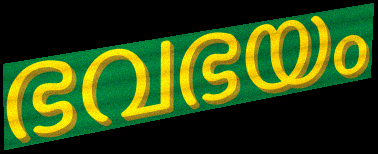
ഭവഭയം